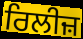
ਰਿਲੀਜ਼